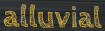
alluvial